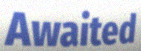
Awaited